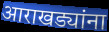
आराखड्यांना